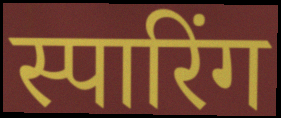
स्पारिंग